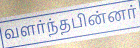
வளர்ந்தபின்னர்